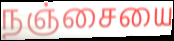
நஞ்சையை